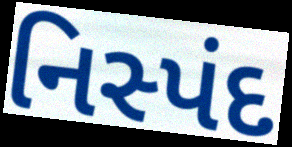
નિસ્પંદ